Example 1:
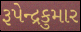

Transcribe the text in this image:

રૂપેન્દ્રકુમાર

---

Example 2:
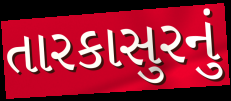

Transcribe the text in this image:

તારકાસુરનું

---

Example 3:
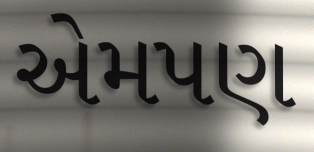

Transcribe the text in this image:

એમપણ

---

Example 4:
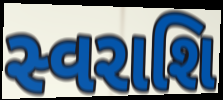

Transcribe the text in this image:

સ્વરાશિ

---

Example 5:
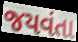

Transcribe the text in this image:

જયવંતા